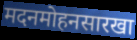
मदनमोहनसारखा